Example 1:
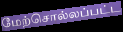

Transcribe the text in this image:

மேற்சொல்லப்பட்ட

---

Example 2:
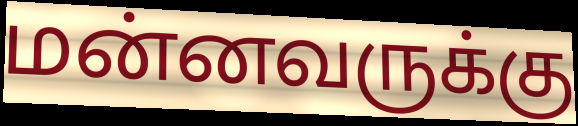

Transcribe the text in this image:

மன்னவருக்கு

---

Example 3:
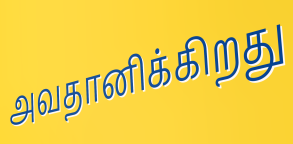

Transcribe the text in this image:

அவதானிக்கிறது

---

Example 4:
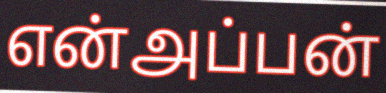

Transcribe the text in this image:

என்அப்பன்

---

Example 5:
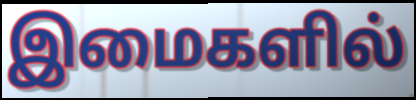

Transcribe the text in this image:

இமைகளில்